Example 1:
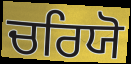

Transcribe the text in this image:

ਚਰਿਯੋ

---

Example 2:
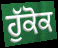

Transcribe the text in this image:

ਹੁੱਕੋਕ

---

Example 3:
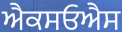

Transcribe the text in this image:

ਐਕਸਓਐਸ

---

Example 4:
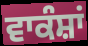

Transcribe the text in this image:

ਵਾਕੰਸ਼ਾਂ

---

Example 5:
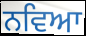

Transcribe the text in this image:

ਨਵਿਆ